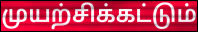
முயற்சிக்கட்டும்